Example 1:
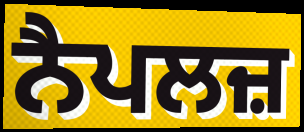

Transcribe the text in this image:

ਨੈਪਲਜ਼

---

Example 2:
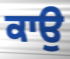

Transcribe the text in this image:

ਕਾਉ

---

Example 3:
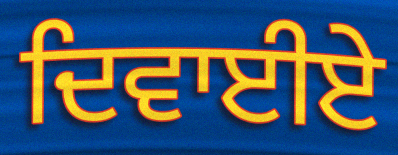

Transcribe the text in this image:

ਦਿਵਾਈਏ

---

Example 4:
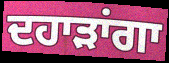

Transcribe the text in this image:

ਦਹਾੜਾਂਗਾ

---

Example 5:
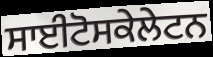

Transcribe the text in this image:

ਸਾਈਟੋਸਕੇਲੇਟਨ